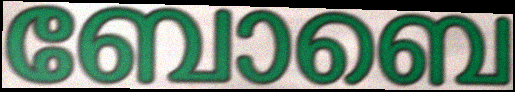
ബോബെ